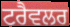
ਟਰੈਵਲਰ